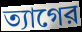
ত্যাগের